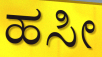
ಹಸೀ